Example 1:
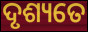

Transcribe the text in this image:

ଦୃଶ୍ୟତେ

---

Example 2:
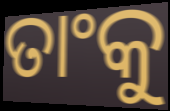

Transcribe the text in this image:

ତାଂକୁ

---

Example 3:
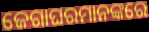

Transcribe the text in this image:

ଜେଗାଘରମାନଙ୍କରେ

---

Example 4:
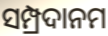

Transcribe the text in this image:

ସମ୍ପ୍ରଦାନମ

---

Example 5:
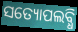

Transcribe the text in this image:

ସତ୍ୟୋପଲବ୍ଧି